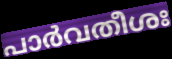
പാർവതീശഃ